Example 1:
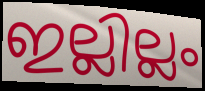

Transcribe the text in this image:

ഇല്ലില്ലം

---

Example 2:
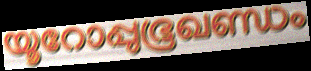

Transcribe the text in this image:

യൂറോപ്പുഭൂഖണ്ഡം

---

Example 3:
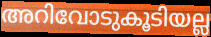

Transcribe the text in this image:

അറിവോടുകൂടിയല്ല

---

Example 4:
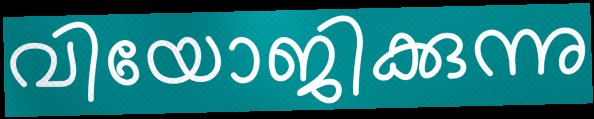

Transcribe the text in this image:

വിയോജിക്കുന്നു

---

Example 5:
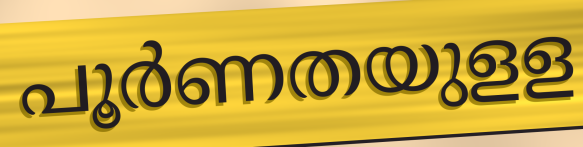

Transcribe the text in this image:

പൂർണതയുളള